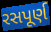
રસપૂર્ણ